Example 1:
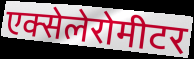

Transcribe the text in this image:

एक्सेलेरोमीटर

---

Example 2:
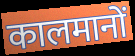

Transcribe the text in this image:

कालमानों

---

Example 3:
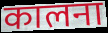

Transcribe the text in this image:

कालना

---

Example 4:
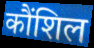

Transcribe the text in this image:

कौंशिल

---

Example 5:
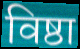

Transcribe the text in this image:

विष्ठा